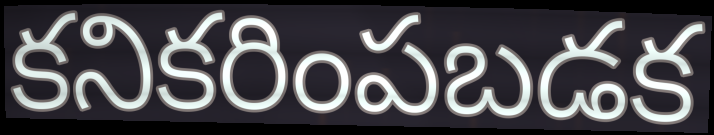
కనికరింపబడక